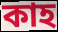
কাহ